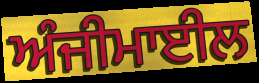
ਅੰਜੀਮਾਈਲ